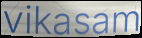
vikasam